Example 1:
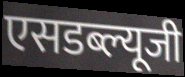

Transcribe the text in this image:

एसडब्ल्यूजी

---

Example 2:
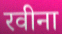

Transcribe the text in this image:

रवीना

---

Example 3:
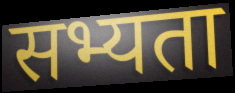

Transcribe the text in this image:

सभ्यता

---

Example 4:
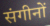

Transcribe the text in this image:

संगीनों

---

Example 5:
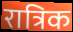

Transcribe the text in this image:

रात्रिक